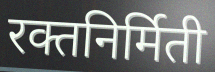
रक्तनिर्मिती